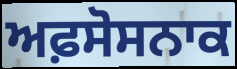
ਅਫ਼ਸੋਸਨਾਕ